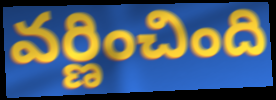
వర్ణించింది